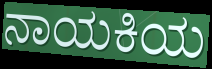
ನಾಯಕಿಯ